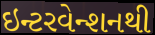
ઇન્ટરવેન્શનથી